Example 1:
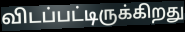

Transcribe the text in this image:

விடப்பட்டிருக்கிறது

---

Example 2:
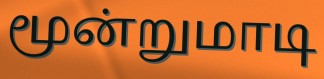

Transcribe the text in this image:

மூன்றுமாடி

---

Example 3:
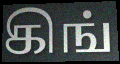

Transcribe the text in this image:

கிங்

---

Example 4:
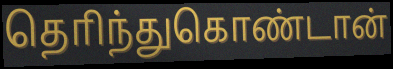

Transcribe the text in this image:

தெரிந்துகொண்டான்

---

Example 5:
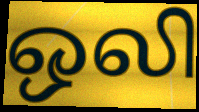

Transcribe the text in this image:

ஒலி